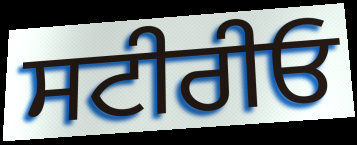
ਸਟੀਰੀਓ